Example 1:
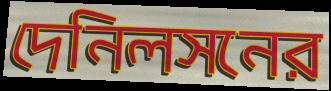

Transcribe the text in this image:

দেনিলসনের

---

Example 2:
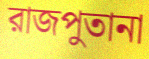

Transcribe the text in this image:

রাজপুতানা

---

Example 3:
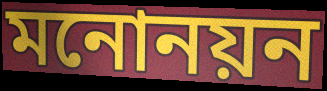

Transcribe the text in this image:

মনোনয়ন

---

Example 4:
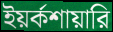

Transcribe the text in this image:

ইয়র্কশায়ারি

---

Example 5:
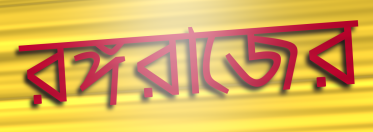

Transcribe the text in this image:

রঙ্গরাজের